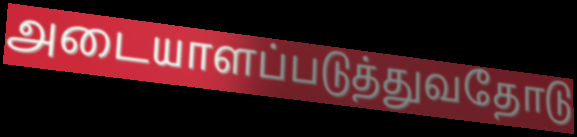
அடையாளப்படுத்துவதோடு